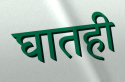
घातही